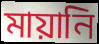
মায়ানি